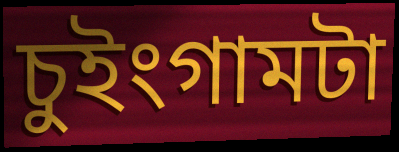
চুইংগামটা